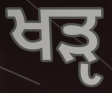
ਖੜੵ